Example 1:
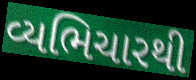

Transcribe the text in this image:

વ્યભિચારથી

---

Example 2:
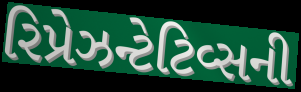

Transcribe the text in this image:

રિપ્રેઝન્ટેટિવ્સની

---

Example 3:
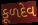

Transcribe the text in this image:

કૂળદેવ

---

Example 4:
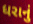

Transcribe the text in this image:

ધરાનું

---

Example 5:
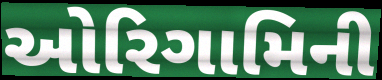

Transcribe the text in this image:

ઓરિગામિની